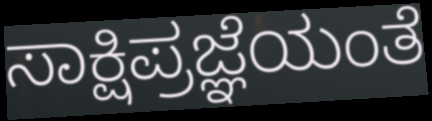
ಸಾಕ್ಷಿಪ್ರಜ್ಞೆಯಂತೆ